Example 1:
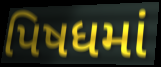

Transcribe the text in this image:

પિષધમાં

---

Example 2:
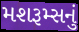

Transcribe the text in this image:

મશરૂમ્સનું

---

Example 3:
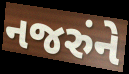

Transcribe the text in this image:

નજરુંને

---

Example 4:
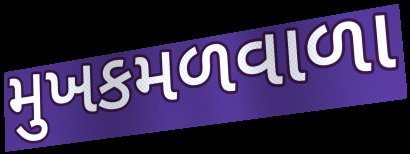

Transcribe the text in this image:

મુખકમળવાળા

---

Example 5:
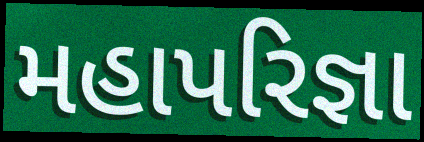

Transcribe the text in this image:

મહાપરિજ્ઞા